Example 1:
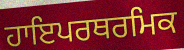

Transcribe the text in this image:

ਹਾਇਪਰਥਰਮਿਕ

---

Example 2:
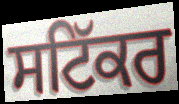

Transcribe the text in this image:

ਸਟਿੱਕਰ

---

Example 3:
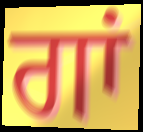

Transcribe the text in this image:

ਗਾਂ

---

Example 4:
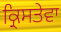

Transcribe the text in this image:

ਕ੍ਰਿਸਤੇਵਾ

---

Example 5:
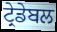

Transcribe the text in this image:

ਟ੍ਰੇਡੇਬਲ